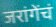
जरांगेंचं